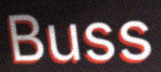
Buss